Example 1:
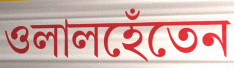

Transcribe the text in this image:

ওলালহেঁতেন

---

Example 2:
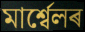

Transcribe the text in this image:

মাৰ্শ্বেলৰ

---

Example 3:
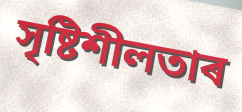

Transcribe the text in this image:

সৃষ্টিশীলতাৰ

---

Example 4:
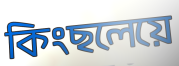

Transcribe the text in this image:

কিংছলেয়ে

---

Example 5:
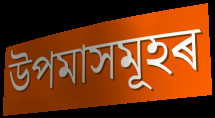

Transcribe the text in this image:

উপমাসমূহৰ